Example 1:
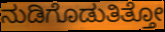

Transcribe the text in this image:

ನುಡಿಗೊಡುತಿತ್ತೋ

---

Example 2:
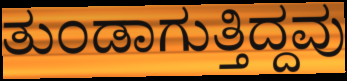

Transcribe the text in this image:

ತುಂಡಾಗುತ್ತಿದ್ದವು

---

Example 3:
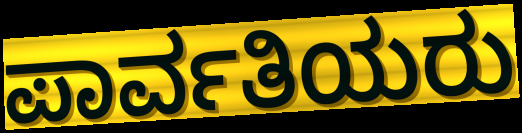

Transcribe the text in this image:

ಪಾರ್ವತಿಯರು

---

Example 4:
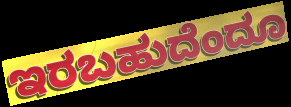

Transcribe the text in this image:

ಇರಬಹುದೆಂದೂ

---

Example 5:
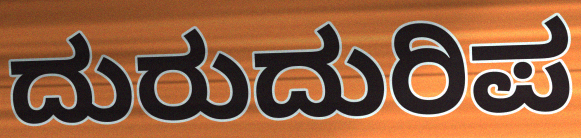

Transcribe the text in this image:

ದುರುದುರಿಪ